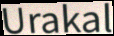
Urakal